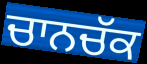
ਚਾਨਚੱਕ